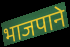
भाजपाने